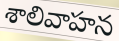
శాలివాహన